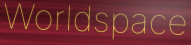
Worldspace